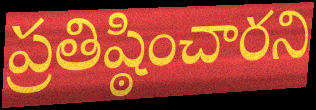
ప్రతిష్ఠించారని